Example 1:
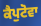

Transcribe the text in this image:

ਕੈਪੁਟੋਵਾ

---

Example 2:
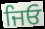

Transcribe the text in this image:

ਜਿਓ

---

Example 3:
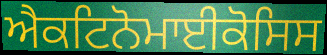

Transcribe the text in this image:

ਐਕਟਿਨੋਮਾਈਕੋਸਿਸ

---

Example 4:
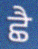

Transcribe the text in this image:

ਛੈ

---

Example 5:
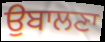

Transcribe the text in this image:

ਉਬਾਲਣਾ